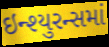
ઇન્શ્યુરન્સમાં